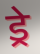
ड्रे